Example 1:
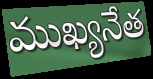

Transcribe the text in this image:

ముఖ్యనేత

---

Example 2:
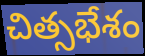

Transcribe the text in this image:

చిత్సభేశం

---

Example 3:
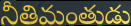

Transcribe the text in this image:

నీతిమంతుడు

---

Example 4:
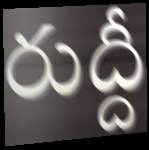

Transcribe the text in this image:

రుద్దీ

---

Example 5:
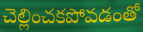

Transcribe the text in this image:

చెల్లించకపోవడంతో